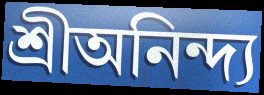
শ্রীঅনিন্দ্য